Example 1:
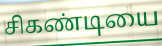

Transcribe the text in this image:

சிகண்டியை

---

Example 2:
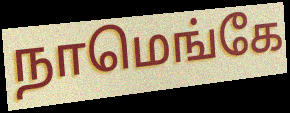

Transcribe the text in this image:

நாமெங்கே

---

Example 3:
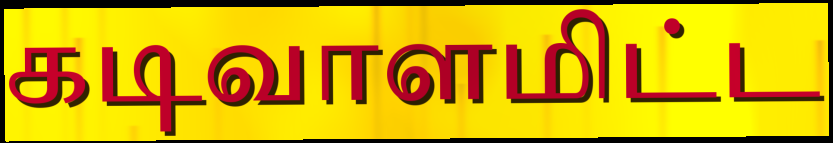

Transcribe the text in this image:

கடிவாளமிட்ட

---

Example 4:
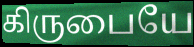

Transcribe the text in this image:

கிருபையே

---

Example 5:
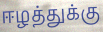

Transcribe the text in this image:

ஈழத்துக்கு